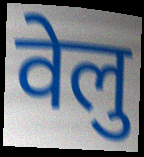
वेलु